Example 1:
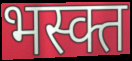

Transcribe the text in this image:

भस्क्त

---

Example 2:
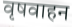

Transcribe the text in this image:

वृषवाहन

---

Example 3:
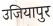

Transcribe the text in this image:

उजियापुर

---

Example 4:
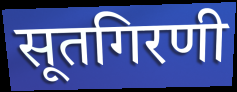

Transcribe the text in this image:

सूतगिरणी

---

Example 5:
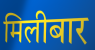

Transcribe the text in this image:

मिलीबार